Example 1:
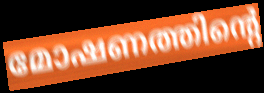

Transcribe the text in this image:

മോഷണത്തിന്റെ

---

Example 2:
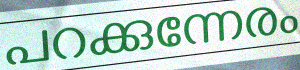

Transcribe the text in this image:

പറക്കുന്നേരം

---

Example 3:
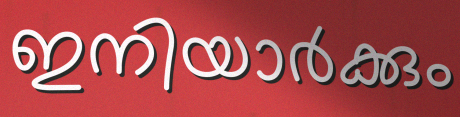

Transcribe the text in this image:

ഇനിയാർക്കും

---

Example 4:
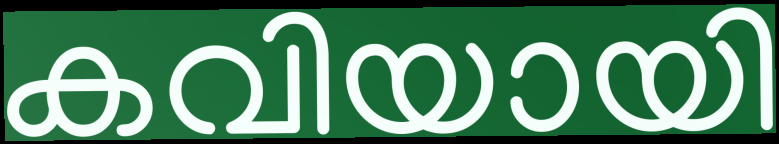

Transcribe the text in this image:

കവിയായി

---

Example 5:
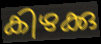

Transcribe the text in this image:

കിഴക്കു